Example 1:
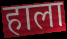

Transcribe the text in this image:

हाला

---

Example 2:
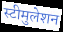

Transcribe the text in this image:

स्टीमुलेशन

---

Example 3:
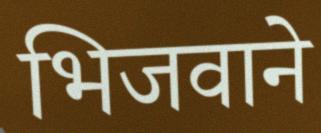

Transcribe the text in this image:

भिजवाने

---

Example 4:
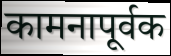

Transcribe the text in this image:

कामनापूर्वक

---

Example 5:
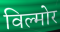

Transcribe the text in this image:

विल्मोर